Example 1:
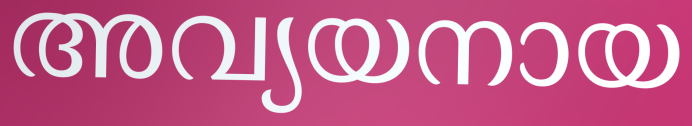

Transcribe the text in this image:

അവ്യയനായ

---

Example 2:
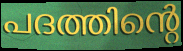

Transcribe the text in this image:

പദത്തിന്റെ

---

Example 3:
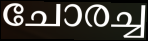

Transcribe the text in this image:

ചോരച്ച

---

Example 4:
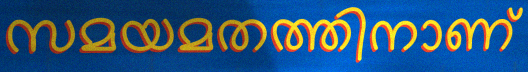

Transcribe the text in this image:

സമയമതത്തിനാണ്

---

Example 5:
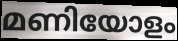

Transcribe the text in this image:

മണിയോളം